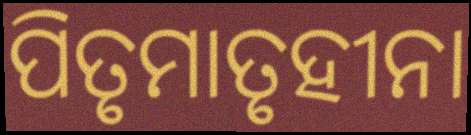
ପିତୃମାତୃହୀନା